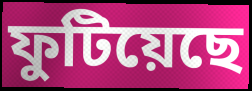
ফুটিয়েছে